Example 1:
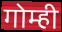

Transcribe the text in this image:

गोम्ही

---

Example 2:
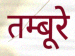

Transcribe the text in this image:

तम्बूरे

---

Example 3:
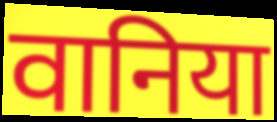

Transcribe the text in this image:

वानिया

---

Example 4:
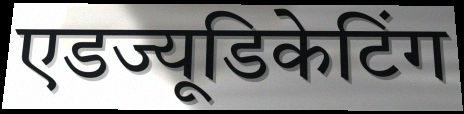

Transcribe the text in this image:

एडज्यूडिकेटिंग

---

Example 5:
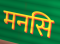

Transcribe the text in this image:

मनसि